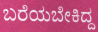
ಬರೆಯಬೇಕಿದ್ದ